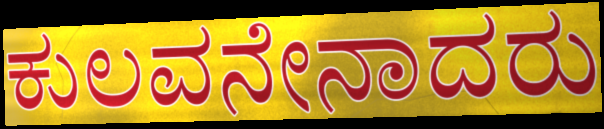
ಕುಲವನೇನಾದರು